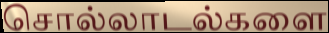
சொல்லாடல்களை